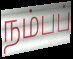
நம்பப்